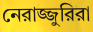
নেরাজ্জুরিরা